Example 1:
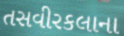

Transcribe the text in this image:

તસવીરકલાના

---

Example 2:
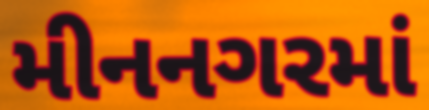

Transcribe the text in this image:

મીનનગરમાં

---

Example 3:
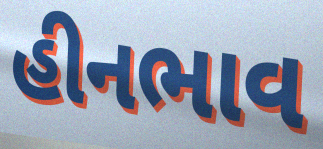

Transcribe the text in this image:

હીનભાવ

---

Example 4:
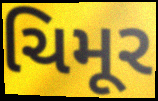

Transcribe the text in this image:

ચિમૂર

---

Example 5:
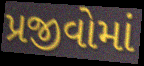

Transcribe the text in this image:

પ્રજીવોમાં